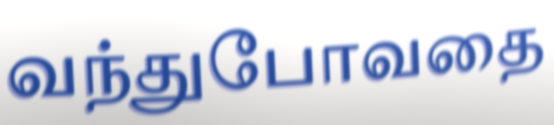
வந்துபோவதை